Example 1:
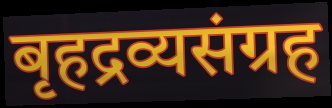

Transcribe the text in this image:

बृहद्रव्यसंग्रह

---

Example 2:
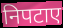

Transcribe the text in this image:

निपटाए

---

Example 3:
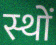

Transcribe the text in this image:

स्थों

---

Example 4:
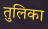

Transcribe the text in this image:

तुलिका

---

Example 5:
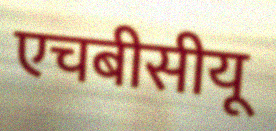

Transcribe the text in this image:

एचबीसीयू